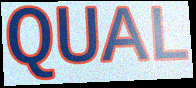
QUAL